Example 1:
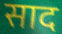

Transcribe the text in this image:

साद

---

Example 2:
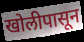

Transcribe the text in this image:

खोलीपासून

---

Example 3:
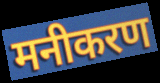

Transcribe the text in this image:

मनीकरण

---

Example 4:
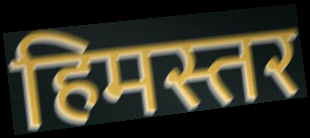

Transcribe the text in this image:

हिमस्तर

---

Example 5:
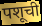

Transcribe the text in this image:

पशूची